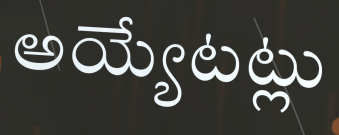
అయ్యేటట్లు